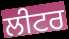
ਲੀਟਰ